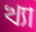
খ্যা